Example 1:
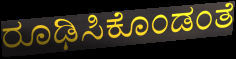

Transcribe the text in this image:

ರೂಢಿಸಿಕೊಂಡಂತೆ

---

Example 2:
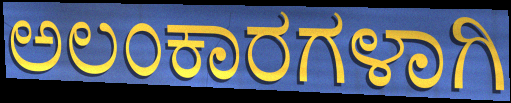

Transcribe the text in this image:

ಅಲಂಕಾರಗಳಾಗಿ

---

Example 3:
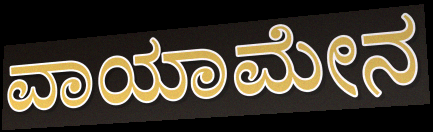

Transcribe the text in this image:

ವಾಯಾಮೇನ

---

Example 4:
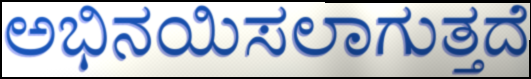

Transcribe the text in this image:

ಅಭಿನಯಿಸಲಾಗುತ್ತದೆ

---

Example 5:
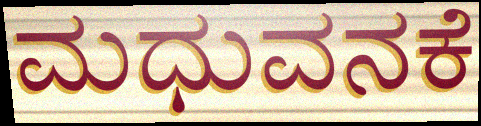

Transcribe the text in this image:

ಮಧುವನಕೆ